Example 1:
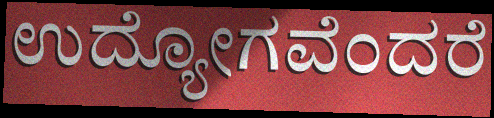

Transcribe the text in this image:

ಉದ್ಯೋಗವೆಂದರೆ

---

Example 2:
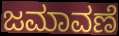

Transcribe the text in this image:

ಜಮಾವಣೆ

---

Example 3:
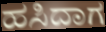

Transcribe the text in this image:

ಹಸಿದಾಗ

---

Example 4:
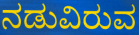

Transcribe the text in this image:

ನಡುವಿರುವ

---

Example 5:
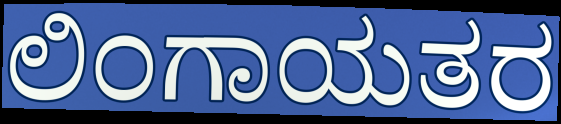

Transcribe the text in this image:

ಲಿಂಗಾಯತರ